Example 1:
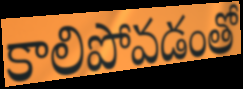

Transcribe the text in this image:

కాలిపోవడంతో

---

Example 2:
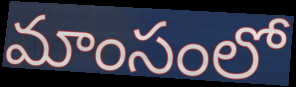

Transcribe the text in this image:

మాంసంలో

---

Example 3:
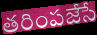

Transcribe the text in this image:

తరింపజేసే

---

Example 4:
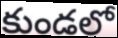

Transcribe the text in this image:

కుండలో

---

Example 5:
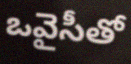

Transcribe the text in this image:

ఒవైసీతో